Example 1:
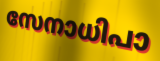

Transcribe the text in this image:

സേനാധിപാ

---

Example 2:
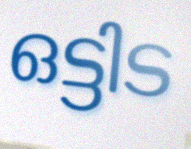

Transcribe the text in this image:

ഒട്ടിട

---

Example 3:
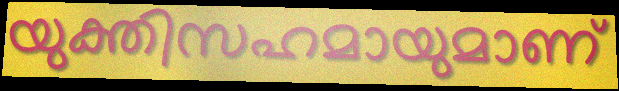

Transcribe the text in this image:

യുക്തിസഹമായുമാണ്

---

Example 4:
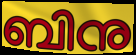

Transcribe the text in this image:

ബിനു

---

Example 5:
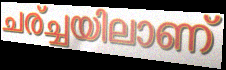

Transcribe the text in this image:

ചര്ച്ചയിലാണ്